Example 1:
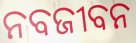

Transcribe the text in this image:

ନବଜୀବନ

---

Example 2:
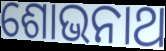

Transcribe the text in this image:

ଶୋଭନାଥ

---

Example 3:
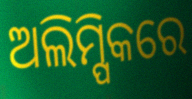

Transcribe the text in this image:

ଅଲିମ୍ପିକରେ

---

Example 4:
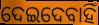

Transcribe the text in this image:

ଦେଇଦେବାହିଁ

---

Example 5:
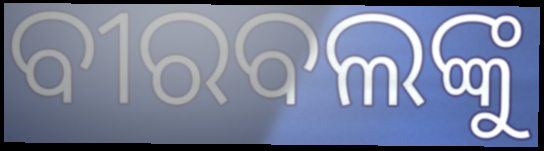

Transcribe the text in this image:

ବୀରବଲଙ୍କୁ